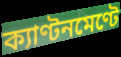
ক্যাণ্টনমেণ্টে